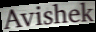
Avishek